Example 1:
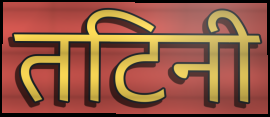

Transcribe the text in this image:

तटिनी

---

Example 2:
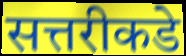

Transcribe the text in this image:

सत्तरीकडे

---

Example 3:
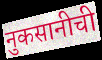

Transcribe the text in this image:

नुकसानीची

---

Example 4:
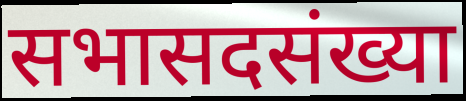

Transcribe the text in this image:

सभासदसंख्या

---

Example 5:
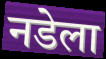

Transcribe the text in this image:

नडेला